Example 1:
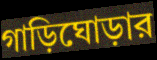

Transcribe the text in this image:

গাড়িঘোড়ার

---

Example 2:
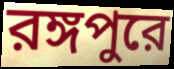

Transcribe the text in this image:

রঙ্গপুরে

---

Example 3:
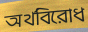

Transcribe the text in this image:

অর্থবিরোধ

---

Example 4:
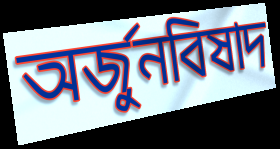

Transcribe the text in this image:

অর্জুনবিষাদ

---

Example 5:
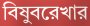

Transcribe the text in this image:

বিষুবরেখার